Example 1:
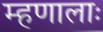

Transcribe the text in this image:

म्हणालाः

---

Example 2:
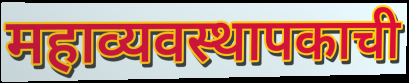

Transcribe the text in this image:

महाव्यवस्थापकाची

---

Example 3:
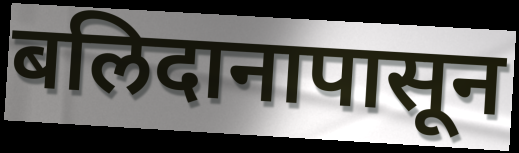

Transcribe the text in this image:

बलिदानापासून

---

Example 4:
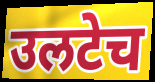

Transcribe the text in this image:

उलटेच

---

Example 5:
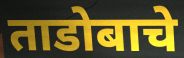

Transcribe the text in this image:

ताडोबाचे